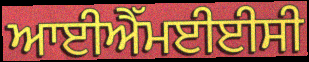
ਆਈਐੱਮਈਈਸੀ